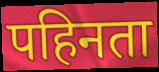
पहिनता